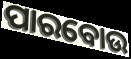
ପାରବୋଉ